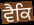
ਵੈਕਿ